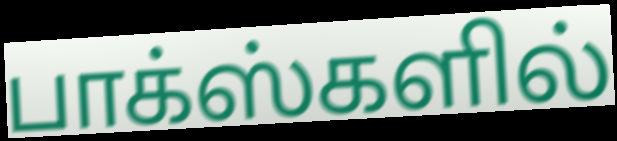
பாக்ஸ்களில்